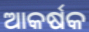
ଆକର୍ଷକ